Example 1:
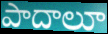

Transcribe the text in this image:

పాదాలూ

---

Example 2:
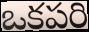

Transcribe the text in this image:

ఒకపరి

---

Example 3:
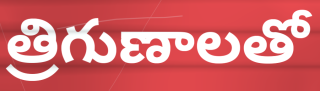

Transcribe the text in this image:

త్రిగుణాలతో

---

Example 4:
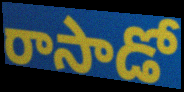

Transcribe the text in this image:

రాసాడో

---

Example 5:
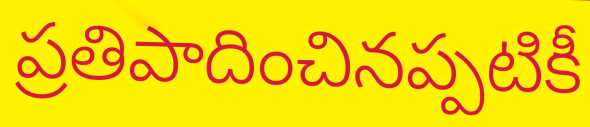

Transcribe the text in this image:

ప్రతిపాదించినప్పటికీ